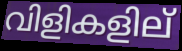
വിളികളില്